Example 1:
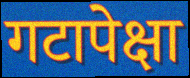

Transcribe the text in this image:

गटापेक्षा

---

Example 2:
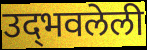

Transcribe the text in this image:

उद्‌भवलेली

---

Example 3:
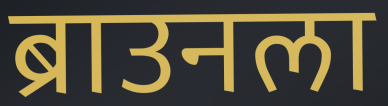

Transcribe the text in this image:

ब्राउनला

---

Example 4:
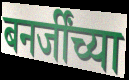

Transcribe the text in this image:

बनर्जींच्या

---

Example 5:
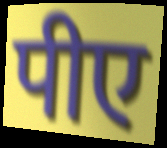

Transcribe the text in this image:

पीए